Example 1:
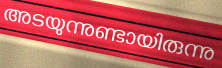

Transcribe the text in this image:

അടയുന്നുണ്ടായിരുന്നു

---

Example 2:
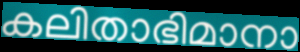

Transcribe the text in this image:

കലിതാഭിമാനാ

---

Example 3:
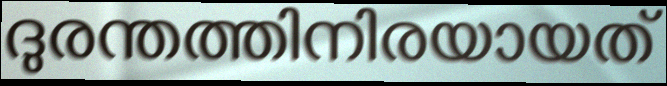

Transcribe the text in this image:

ദുരന്തത്തിനിരയായത്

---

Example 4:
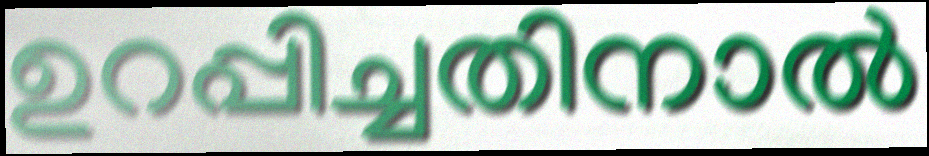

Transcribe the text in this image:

ഉറപ്പിച്ചതിനാൽ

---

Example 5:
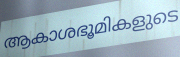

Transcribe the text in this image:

ആകാശഭൂമികളുടെ